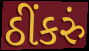
ઠીંકરું